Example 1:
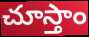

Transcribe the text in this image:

చూస్తాం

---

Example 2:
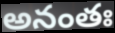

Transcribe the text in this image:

అనంతః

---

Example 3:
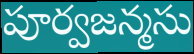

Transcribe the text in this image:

పూర్వజన్మసు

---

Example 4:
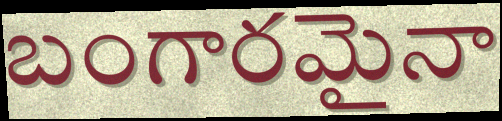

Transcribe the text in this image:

బంగారమైనా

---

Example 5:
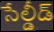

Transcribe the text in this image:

సేల్డీడ్